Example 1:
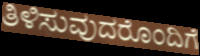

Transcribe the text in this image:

ತಿಳಿಸುವುದರೊಂದಿಗೆ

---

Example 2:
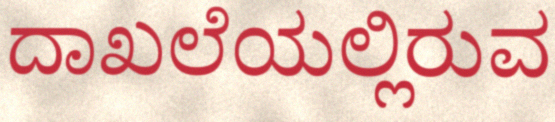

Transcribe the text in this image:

ದಾಖಲೆಯಲ್ಲಿರುವ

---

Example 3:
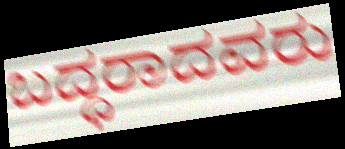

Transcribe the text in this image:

ಬದ್ಧರಾದವರು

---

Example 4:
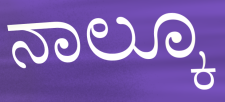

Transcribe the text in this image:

ನಾಲ್ಕೂ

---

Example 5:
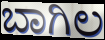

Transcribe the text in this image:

ಬಾಗಿಲ